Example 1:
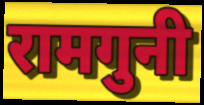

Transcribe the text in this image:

रामगुनी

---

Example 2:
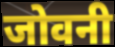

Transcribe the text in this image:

जोवनी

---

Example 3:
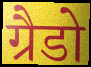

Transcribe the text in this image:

ग्रैडो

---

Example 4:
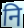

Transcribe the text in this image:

नि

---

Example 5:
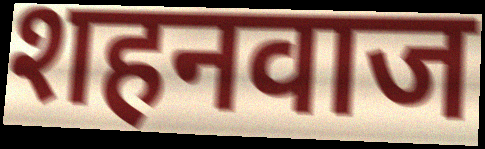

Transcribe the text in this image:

शहनवाज